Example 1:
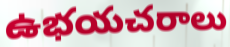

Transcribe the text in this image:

ఉభయచరాలు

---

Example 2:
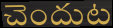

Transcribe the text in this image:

చెందుట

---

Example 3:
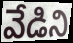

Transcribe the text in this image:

వేడిని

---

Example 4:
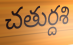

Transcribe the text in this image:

చతుర్దశి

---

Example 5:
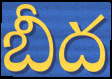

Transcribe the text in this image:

బీద